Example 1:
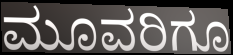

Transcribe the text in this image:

ಮೂವರಿಗೂ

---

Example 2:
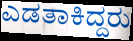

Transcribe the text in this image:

ಎಡತಾಕಿದ್ದರು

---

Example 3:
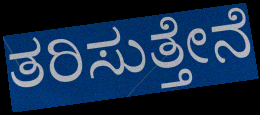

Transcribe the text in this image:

ತರಿಸುತ್ತೇನೆ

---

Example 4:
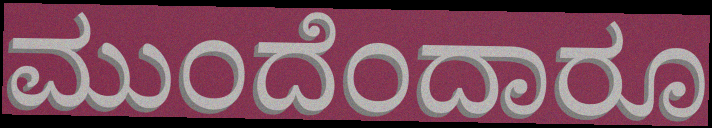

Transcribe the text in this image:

ಮುಂದೆಂದಾರೂ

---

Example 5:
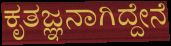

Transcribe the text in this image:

ಕೃತಜ್ಞನಾಗಿದ್ದೇನೆ